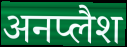
अनप्लैश